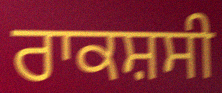
ਰਾਕਸ਼ਸੀ